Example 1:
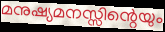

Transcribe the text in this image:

മനുഷ്യമനസ്സിന്റെയും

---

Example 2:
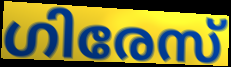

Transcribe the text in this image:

ഗിരേസ്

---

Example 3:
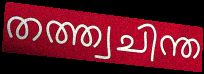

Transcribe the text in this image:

തത്ത്വചിന്ത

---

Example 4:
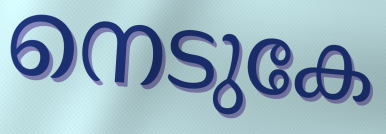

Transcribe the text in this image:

നെടുകേ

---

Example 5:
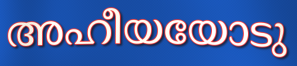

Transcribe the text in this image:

അഹീയയോടു